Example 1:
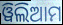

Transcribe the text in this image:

ୱିଲିଆମ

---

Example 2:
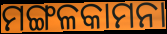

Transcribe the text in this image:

ମଙ୍ଗଳକାମନା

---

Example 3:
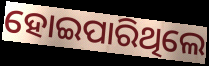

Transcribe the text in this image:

ହୋଇପାରିଥିଲେ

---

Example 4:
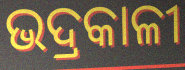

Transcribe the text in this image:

ଭଦ୍ରକାଳୀ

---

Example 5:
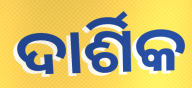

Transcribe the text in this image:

ଦାର୍ଶିକ